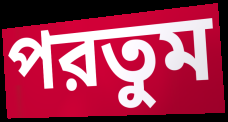
পরতুম